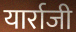
यार्राजी